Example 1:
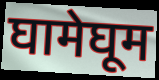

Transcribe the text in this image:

घामेघूम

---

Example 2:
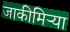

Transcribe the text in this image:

जाकीमिऱ्या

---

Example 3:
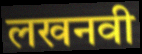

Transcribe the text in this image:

लखनवी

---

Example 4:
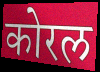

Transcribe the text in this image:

कोरल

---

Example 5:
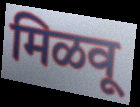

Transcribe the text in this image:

मिळवू